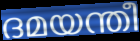
ദമയന്തീ